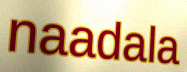
naadala